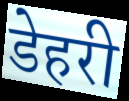
डेहरी